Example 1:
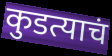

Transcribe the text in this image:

कुडत्याचं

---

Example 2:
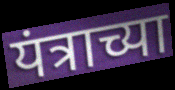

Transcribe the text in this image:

यंत्राच्या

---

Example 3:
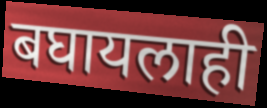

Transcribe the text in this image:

बघायलाही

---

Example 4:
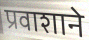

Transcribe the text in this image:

प्रवाशाने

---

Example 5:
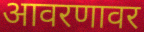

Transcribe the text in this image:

आवरणावर